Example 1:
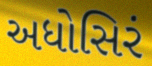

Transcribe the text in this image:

અધોસિરં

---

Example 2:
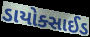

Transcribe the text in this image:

ડાયોક્સાઈડ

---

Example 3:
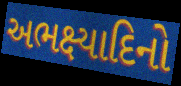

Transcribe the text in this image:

અભક્ષ્યાદિનો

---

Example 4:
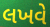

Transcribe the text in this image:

લખવે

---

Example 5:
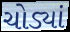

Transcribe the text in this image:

ચોડ્યાં